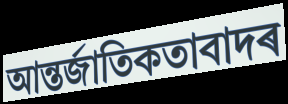
আন্তৰ্জাতিকতাবাদৰ